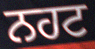
ਨਹਟ